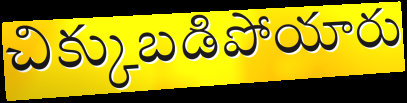
చిక్కుబడిపోయారు